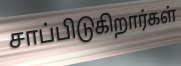
சாப்பிடுகிறார்கள்